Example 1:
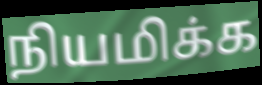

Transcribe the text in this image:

நியமிக்க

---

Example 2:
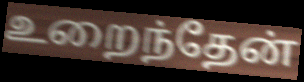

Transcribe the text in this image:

உறைந்தேன்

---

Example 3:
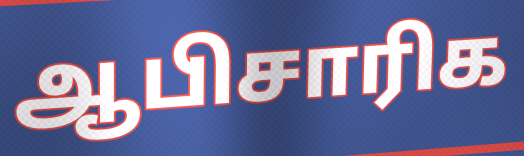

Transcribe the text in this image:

ஆபிசாரிக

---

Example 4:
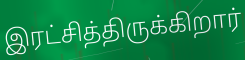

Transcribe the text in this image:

இரட்சித்திருக்கிறார்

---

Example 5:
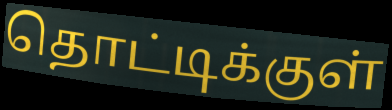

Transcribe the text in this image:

தொட்டிக்குள்